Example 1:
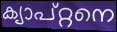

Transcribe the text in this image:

ക്യാപ്റ്റനെ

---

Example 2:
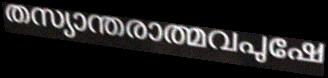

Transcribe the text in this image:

തസ്യാന്തരാത്മവപുഷേ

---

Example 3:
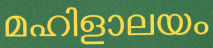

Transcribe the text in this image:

മഹിളാലയം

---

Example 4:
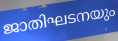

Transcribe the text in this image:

ജാതിഘടനയും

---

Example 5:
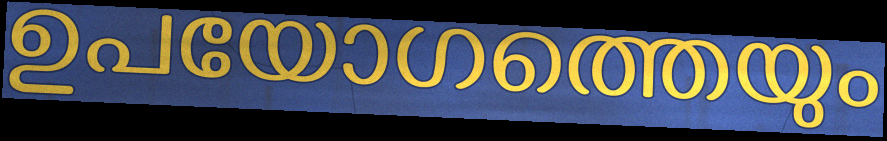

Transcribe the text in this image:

ഉപയോഗത്തെയും